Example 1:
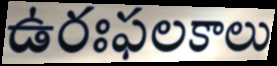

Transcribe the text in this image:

ఉరఃఫలకాలు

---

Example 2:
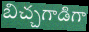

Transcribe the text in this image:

బిచ్చగాడిగా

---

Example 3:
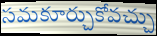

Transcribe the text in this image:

సమకూర్చుకోవచ్చు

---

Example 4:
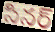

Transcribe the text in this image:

సినర్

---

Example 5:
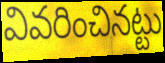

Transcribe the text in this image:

వివరించినట్టు